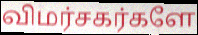
விமர்சகர்களே